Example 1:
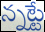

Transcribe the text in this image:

న్నట్టే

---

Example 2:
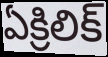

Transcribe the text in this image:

ఏక్రిలిక్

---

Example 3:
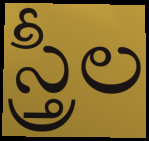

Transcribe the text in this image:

స్త్రీల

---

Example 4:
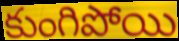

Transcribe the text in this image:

కుంగిపోయి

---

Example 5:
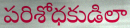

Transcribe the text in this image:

పరిశోధకుడిలా